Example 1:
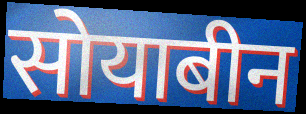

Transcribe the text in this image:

सोयाबीन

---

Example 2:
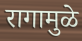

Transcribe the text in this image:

रागामुळे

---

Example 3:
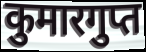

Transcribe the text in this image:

कुमारगुप्त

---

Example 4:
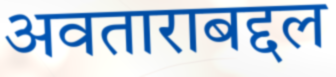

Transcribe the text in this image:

अवताराबद्दल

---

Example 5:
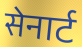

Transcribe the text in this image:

सेनार्ट